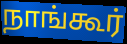
நாங்கூர்